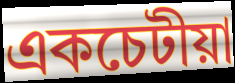
একচেটীয়া